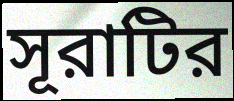
সূরাটির